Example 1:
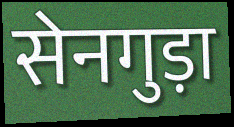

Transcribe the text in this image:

सेनगुड़ा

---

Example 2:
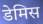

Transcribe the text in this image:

डेमिस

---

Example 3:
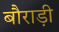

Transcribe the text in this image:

बौराड़ी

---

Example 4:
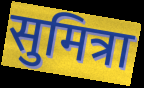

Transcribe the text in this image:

सुमित्रा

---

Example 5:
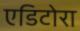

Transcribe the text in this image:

एडिटोरा